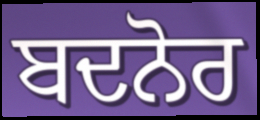
ਬਦਨੋਰ